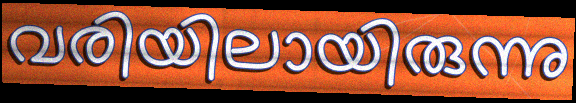
വരിയിലായിരുന്നു